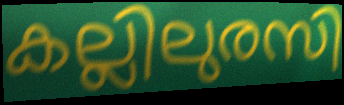
കല്ലിലുരസി